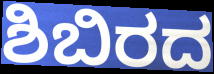
ಶಿಬಿರದ